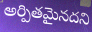
అర్పితమైనదని